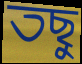
তছু